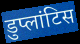
डुप्लांटिस